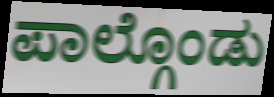
ಪಾಲ್ಗೊಂಡು